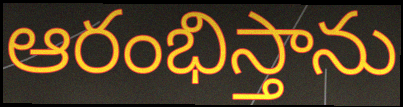
ఆరంభిస్తాను